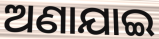
ଅଣାଯାଇ